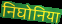
निघोनिया